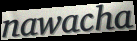
nawacha